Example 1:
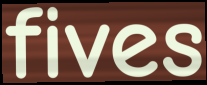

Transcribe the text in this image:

fives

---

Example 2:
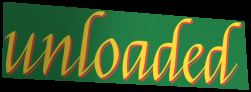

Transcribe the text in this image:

unloaded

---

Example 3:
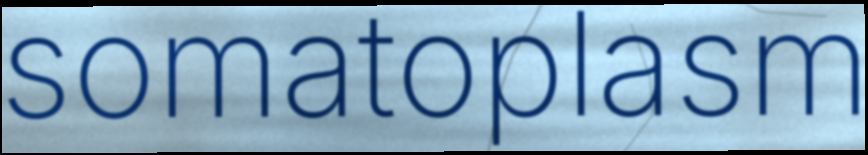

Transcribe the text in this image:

somatoplasm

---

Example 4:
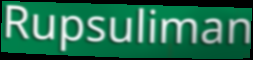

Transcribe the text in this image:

Rupsuliman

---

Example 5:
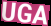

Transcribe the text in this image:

UGA